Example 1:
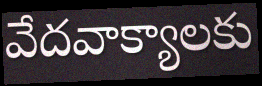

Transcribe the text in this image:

వేదవాక్యాలకు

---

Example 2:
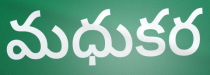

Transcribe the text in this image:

మధుకర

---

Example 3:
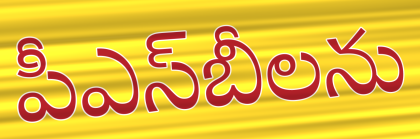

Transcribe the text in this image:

పీఎస్‌బీలను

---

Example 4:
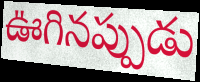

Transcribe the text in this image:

ఊగినప్పుడు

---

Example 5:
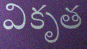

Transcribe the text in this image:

వికృత